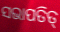
ସଭାପତିତ୍